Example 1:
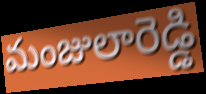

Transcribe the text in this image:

మంజులారెడ్డి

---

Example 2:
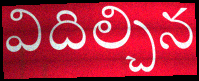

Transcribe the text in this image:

విదిల్చిన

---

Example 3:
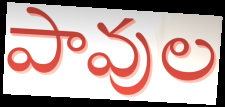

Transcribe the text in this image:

పావుల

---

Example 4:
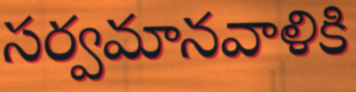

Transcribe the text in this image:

సర్వమానవాళికి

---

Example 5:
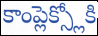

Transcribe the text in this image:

కాంప్లెక్స్లోకి